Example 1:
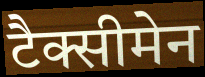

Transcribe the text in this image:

टैक्सीमेन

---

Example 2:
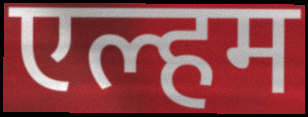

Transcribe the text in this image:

एल्हम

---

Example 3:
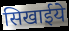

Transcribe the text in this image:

सिखाईये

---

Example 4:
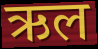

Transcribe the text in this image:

ऋल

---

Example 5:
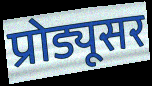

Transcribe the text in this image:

प्रोड्यूसर